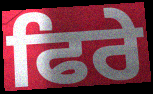
ਫਿਰੇ